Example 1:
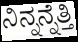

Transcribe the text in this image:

ನಿನ್ನನ್ನೆತ್ತಿ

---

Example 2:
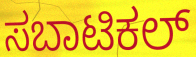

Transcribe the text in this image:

ಸಬಾಟಿಕಲ್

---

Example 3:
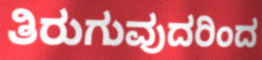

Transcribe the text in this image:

ತಿರುಗುವುದರಿಂದ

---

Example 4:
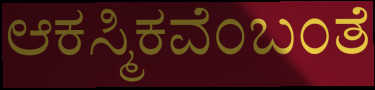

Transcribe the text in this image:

ಆಕಸ್ಮಿಕವೆಂಬಂತೆ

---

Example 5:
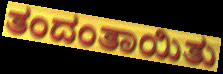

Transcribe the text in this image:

ತಂದಂತಾಯಿತು